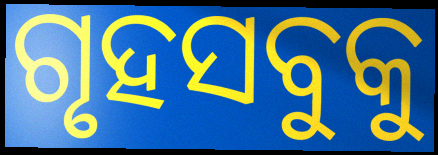
ଗୃହସବୁକୁ